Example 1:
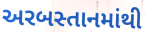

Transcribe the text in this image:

અરબસ્તાનમાંથી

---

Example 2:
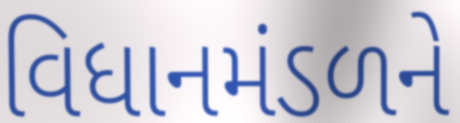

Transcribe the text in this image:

વિધાનમંડળને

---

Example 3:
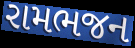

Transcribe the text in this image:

રામભજન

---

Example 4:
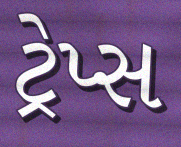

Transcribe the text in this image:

ટ્રેપ્સ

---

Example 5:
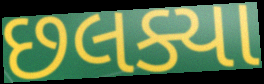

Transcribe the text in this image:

છલક્યા